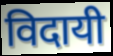
विदायी